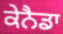
ਕੇਨੈਡਾ